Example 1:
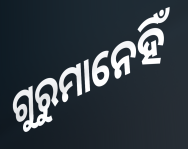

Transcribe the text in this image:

ଗୁରୁମାନେହିଁ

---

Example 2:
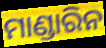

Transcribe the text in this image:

ମାଣ୍ଡାରିନ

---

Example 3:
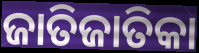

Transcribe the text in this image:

ଜାତିଜାତିକା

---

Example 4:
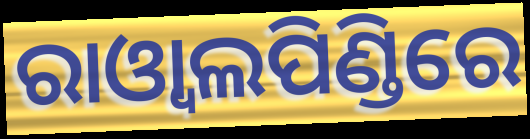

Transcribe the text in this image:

ରାଓ୍ଵାଲପିଣ୍ଡିରେ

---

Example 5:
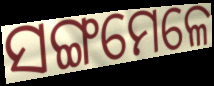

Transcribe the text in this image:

ସଙ୍ଗମେଳେ